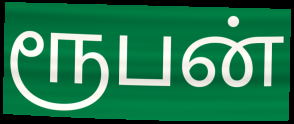
ரூபன்